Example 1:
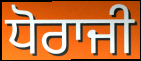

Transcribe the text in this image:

ਧੋਰਾਜੀ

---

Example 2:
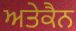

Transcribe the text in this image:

ਅਤੇਕੈਨ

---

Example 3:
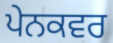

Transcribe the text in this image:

ਪੇਨਕਵਰ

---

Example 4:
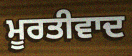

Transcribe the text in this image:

ਮੂਰਤੀਵਾਦ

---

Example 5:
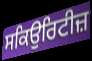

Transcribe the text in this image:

ਸਕਿਉਰਿਟੀਜ਼